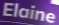
Elaine